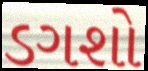
ડગશો